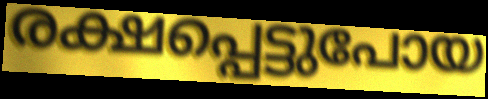
രക്ഷപ്പെട്ടുപോയ